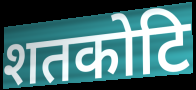
शतकोटि